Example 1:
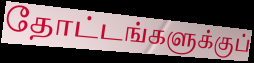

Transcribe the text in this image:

தோட்டங்களுக்குப்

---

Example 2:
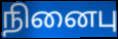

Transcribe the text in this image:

நினைபு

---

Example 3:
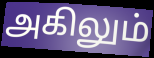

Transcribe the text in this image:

அகிலும்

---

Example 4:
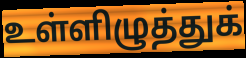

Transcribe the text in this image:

உள்ளிழுத்துக்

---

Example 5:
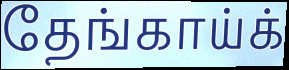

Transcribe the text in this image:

தேங்காய்க்